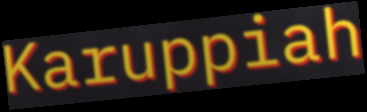
Karuppiah